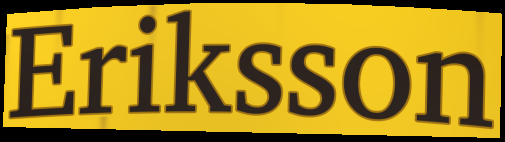
Eriksson